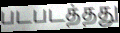
படபடத்தது